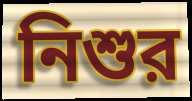
নিশুর